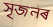
সৃজনৰ